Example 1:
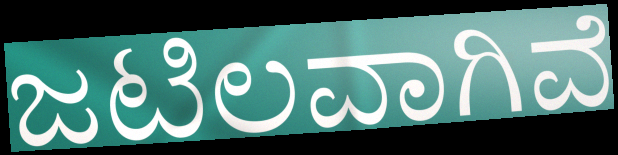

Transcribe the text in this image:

ಜಟಿಲವಾಗಿವೆ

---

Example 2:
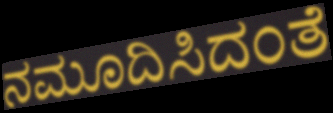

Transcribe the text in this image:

ನಮೂದಿಸಿದಂತೆ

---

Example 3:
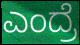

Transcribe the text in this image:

ಎಂದ್ರೆ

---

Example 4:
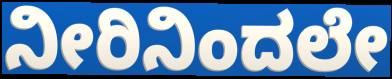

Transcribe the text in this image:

ನೀರಿನಿಂದಲೇ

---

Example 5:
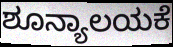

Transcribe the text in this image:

ಶೂನ್ಯಾಲಯಕೆ